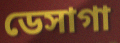
ডেসাগা